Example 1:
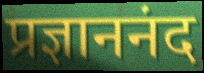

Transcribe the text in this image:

प्रज्ञाननंद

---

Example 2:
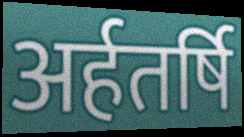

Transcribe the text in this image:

अर्हतर्षि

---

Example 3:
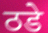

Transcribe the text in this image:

ठडे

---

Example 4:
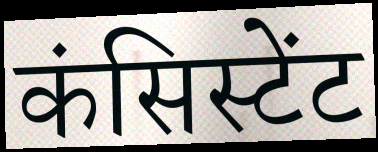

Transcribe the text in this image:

कंसिस्टेंट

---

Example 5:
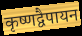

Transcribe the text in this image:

कृष्णद्वैपायन